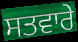
ਸਤਵਾਰੇ